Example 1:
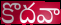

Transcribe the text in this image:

కొదవా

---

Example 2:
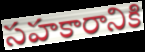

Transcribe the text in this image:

సహకారానికి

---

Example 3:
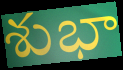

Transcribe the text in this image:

శుభా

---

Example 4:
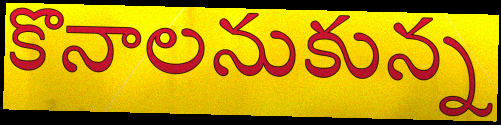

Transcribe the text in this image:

కొనాలనుకున్న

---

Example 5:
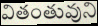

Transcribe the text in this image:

వితంతువుని